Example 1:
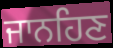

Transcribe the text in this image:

ਜਾਨਹਿਣ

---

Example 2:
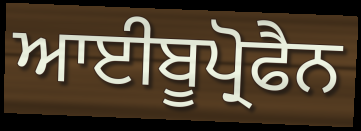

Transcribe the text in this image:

ਆਈਬੂਪ੍ਰੋਫੈਨ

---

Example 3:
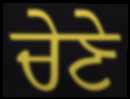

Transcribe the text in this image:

ਚੇਣੇ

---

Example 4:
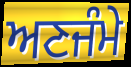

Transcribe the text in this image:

ਅਣਜੰਮੇ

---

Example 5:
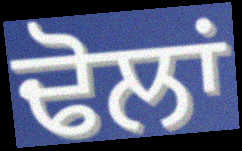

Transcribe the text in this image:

ਢੋਲਾਂ